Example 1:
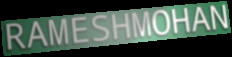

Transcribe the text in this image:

RAMESHMOHAN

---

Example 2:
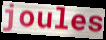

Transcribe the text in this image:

joules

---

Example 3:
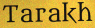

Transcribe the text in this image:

Tarakh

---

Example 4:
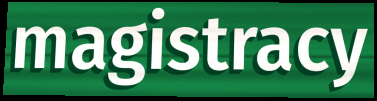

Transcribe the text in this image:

magistracy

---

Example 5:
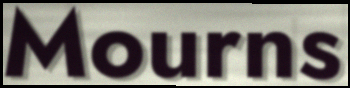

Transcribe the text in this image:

Mourns